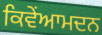
ਕਿਵੇਂਆਮਦਨ